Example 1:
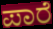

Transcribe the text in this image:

ಪಾರೆ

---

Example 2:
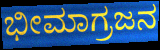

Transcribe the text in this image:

ಭೀಮಾಗ್ರಜನ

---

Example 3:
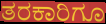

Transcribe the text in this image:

ತರಕಾರಿಗೂ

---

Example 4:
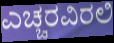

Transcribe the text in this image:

ಎಚ್ಚರವಿರಲಿ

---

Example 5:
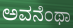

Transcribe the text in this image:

ಅವನೆಂಥಾ